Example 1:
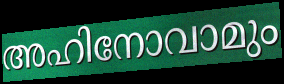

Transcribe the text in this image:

അഹിനോവാമും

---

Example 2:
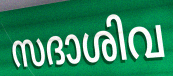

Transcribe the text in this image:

സദാശിവ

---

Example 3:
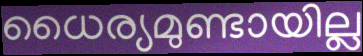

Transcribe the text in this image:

ധൈര്യമുണ്ടായില്ല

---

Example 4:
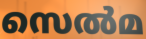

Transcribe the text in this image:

സെൽമ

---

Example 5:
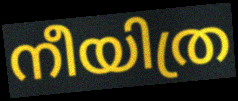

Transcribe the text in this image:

നീയിത്ര